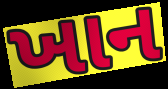
ખાન